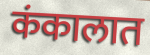
कंकालात